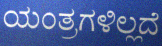
ಯಂತ್ರಗಳಿಲ್ಲದೆ